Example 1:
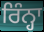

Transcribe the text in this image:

ਰਿੰਨ੍ਹਾ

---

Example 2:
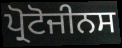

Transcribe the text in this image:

ਪ੍ਰੋਟੋਜੀਨਸ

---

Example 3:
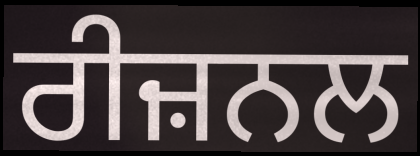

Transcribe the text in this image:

ਰੀਜ਼ਨਲ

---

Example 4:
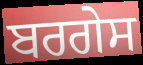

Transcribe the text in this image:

ਬਰਗੇਸ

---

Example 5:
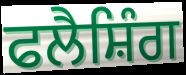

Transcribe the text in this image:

ਫਲੈਸ਼ਿੰਗ